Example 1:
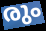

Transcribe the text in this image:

രും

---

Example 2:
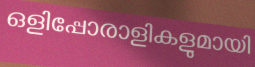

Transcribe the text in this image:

ഒളിപ്പോരാളികളുമായി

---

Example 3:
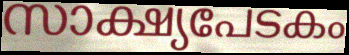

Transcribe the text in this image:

സാക്ഷ്യപേടകം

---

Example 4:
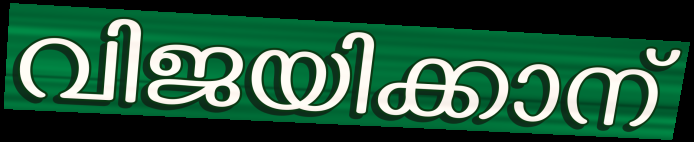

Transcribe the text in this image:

വിജയിക്കാന്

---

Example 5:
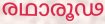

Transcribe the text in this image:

രഥാരൂഢ